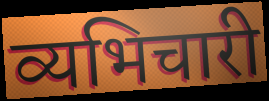
व्यभिचारी